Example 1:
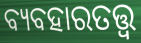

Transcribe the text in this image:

ବ୍ୟବହାରତତ୍ତ୍ବ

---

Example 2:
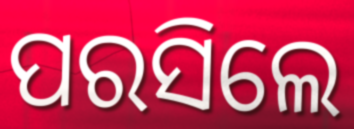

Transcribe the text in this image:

ପରସିଲେ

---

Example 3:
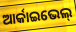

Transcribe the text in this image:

ଆର୍କାଇଭେଲ୍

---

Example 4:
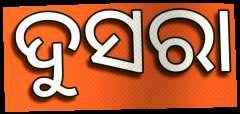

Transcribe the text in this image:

ଦୁସରା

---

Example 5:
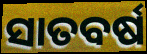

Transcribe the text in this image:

ସାତବର୍ଷ